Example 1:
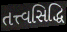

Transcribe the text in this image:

તત્ત્વસિદ્ધિ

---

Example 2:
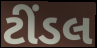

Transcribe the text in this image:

ટીંડલ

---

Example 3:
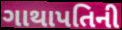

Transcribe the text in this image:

ગાથાપતિની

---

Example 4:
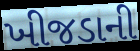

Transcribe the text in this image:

ખીજડાની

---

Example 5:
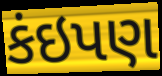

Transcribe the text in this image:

કંઇપણ